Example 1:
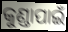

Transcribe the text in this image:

କୁଣ୍ଡାପାଇଁ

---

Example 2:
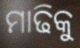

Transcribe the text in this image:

ମାଢିକୁ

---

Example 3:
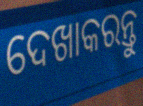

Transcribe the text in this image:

ଦେଖାକରନ୍ତୁ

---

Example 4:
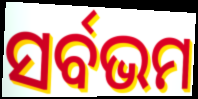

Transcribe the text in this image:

ସର୍ବଭମ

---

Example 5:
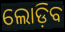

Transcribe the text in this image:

ଲୋଡ଼ିବ